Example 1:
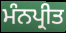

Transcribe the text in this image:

ਮੰਨਪ੍ਰੀਤ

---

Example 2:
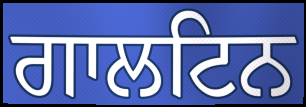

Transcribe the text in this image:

ਗਾਲਟਿਨ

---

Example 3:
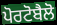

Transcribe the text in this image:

ਪੋਰਟੋਬੈਲੋ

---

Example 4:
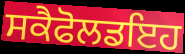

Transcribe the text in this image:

ਸਕੈਫੋਲਡਇਹ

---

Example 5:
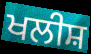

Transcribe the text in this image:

ਖਲੀਸ਼